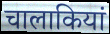
चालाकियां